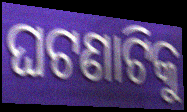
ଘଟଣାଟିକୁ